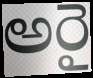
అరై